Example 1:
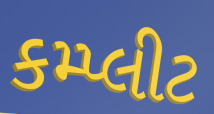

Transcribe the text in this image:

કમ્પ્લીટ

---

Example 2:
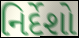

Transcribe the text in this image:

નિર્દેશો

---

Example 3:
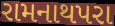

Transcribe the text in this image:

રામનાથપરા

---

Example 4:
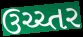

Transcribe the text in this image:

ઉચ્ચ્તર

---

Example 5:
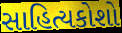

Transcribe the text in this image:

સાહિત્યકોશો